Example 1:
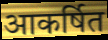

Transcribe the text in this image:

आकर्षित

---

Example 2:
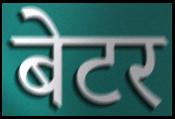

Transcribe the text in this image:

बेटर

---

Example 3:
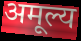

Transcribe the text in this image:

अमूल्‍य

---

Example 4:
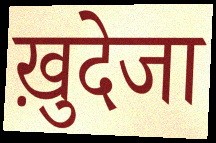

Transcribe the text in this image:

ख़ुदेजा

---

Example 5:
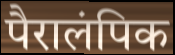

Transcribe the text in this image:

पैरालंपिक